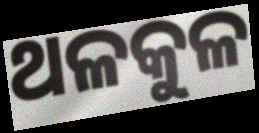
ଥଳକୁଳ